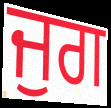
ਜੁਗ